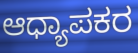
ಆಧ್ಯಾಪಕರ